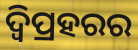
ଦ୍ବିପ୍ରହରର